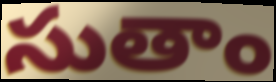
సుతాం